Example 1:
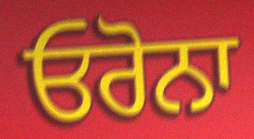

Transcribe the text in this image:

ਓਰੋਨਾ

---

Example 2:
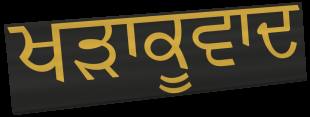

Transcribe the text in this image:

ਖੜਾਕੂਵਾਦ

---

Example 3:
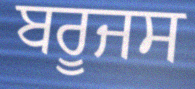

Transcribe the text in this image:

ਬਰੂਜਸ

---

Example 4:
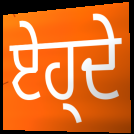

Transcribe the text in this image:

ਏਹ੍ਦੇ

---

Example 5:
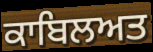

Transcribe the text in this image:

ਕਾਬਿਲਅਤ